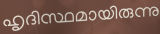
ഹൃദിസ്ഥമായിരുന്നു